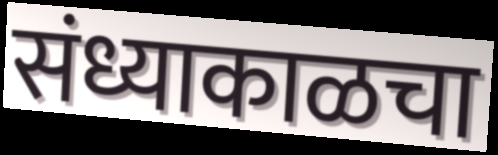
संध्याकाळचा